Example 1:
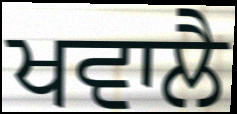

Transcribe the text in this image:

ਖਵਾਲੈ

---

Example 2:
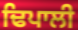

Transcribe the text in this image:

ਢਿਪਾਲੀ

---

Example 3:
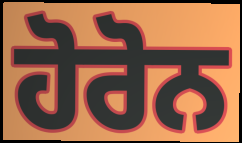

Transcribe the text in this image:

ਹੋਰੋਨ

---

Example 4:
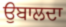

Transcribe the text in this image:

ਉਬਾਲਦਾ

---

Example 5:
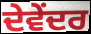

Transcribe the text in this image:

ਦੇਵੇਂਦਰ